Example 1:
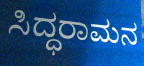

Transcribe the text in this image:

ಸಿದ್ಧರಾಮನ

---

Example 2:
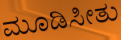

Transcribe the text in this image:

ಮೂಡಿಸೀತು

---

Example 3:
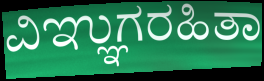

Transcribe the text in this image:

ವಿಞ್ಞುಗರಹಿತಾ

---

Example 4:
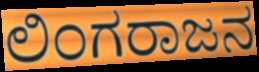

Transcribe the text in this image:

ಲಿಂಗರಾಜನ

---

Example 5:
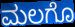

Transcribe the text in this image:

ಮಲಗೊ